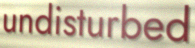
undisturbed